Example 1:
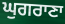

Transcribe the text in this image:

ਘੁਗਰਾਣਾ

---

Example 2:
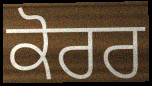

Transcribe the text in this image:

ਕੋਰਰ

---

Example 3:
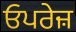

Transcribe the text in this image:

ਓਪਰੇਜ਼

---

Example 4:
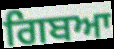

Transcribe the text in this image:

ਗਿਬਆ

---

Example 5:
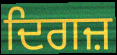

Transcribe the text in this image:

ਦਿਗਜ਼